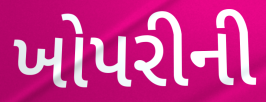
ખોપરીની